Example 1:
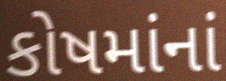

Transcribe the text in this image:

કોષમાંનાં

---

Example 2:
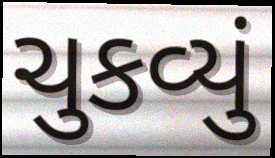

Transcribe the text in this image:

ચુકવ્યું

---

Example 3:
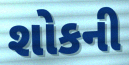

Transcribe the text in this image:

શોકની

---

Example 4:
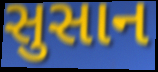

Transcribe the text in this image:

સુસાન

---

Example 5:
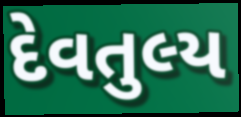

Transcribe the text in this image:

દેવતુલ્ય